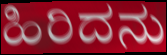
ಹಿರಿದನು